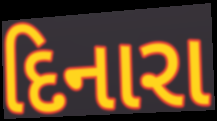
દિનારા